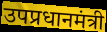
उपप्रधानमंत्री